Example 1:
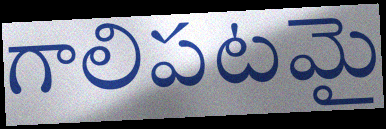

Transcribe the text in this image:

గాలిపటమై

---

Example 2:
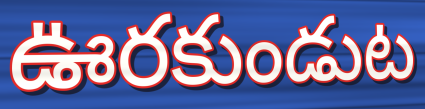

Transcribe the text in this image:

ఊరకుండుట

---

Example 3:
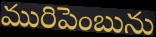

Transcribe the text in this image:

మురిపెంబును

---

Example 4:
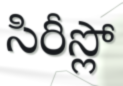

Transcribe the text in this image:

సిరీస్లో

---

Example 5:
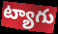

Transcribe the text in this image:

ట్యాగు